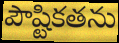
పౌష్టికతను